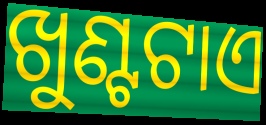
ଖୁଣ୍ଟଟାଏ